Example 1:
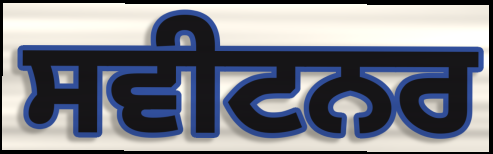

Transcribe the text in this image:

ਸਵੀਟਨਰ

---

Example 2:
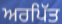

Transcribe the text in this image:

ਅਰਪਿੱਤ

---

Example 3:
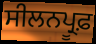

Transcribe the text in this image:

ਸੀਲਨਪ੍ਰੂਫ਼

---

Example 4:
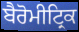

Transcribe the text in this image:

ਬੈਰੋਮੀਟ੍ਰਿਕ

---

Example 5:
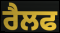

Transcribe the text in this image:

ਰੈਲਫ